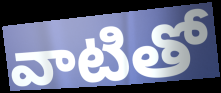
వాటితో